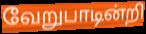
வேறுபாடின்றி